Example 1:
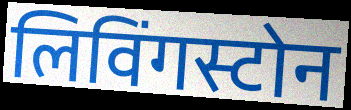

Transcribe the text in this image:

लिविंगस्टोन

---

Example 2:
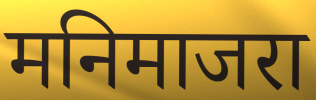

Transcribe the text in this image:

मनिमाजरा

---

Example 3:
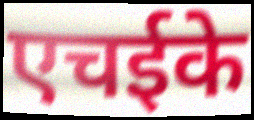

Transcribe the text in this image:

एचईके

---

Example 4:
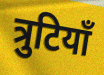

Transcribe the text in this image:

त्रुटियाँ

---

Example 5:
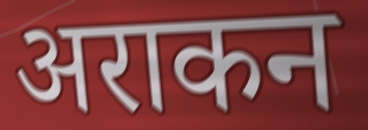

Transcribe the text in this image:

अराकन